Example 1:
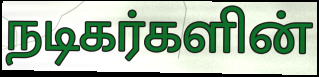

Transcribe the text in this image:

நடிகர்களின்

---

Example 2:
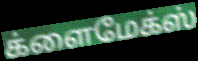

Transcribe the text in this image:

க்ளைமேக்ஸ்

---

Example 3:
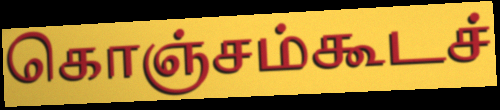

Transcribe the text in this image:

கொஞ்சம்கூடச்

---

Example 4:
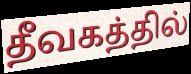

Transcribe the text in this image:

தீவகத்தில்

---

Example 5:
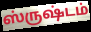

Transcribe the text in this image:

ஸ்ருஷ்டம்